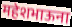
महेशभाऊना